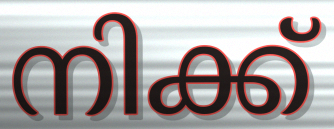
നിക്ക്